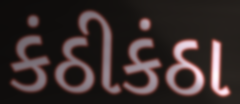
કંઠીકંઠા